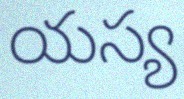
యస్య